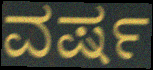
ವರ್ಷ